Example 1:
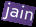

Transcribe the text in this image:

jain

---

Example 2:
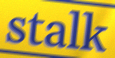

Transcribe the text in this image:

stalk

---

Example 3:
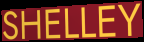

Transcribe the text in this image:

SHELLEY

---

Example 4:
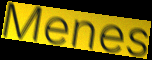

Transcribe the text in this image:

Menes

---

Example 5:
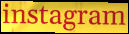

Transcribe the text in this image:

instagram